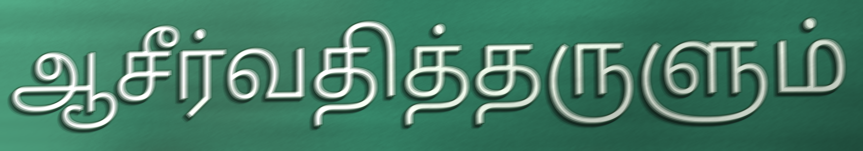
ஆசீர்வதித்தருளும்